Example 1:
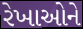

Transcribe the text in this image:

રેખાઓને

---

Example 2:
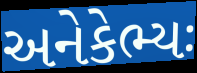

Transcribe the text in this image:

અનેકેભ્યઃ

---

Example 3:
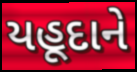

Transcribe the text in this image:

યહૂદાને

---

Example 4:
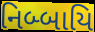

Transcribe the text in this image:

નિબ્બાયિ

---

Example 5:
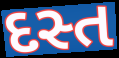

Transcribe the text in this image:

દસ્ત